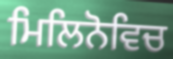
ਮਿਲਿਨੋਵਿਚ